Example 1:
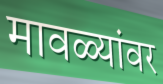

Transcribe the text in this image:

मावळ्यांवर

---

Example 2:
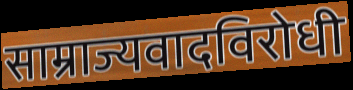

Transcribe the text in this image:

साम्राज्यवादविरोधी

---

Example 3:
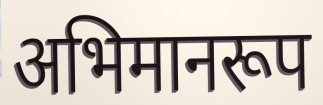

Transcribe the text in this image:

अभिमानरूप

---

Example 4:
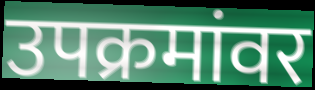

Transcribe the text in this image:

उपक्रमांवर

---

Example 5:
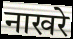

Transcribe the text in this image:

नाखरे